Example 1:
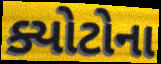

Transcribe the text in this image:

ક્યોટોના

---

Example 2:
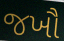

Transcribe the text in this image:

જખૌ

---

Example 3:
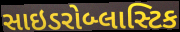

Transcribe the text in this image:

સાઇડરોબ્લાસ્ટિક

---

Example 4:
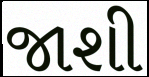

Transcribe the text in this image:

જાશી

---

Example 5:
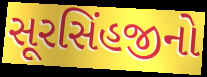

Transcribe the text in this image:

સૂરસિંહજીનો